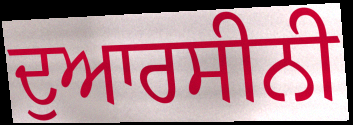
ਦੁਆਰਸੀਨੀ